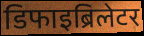
डिफाइब्रिलेटर